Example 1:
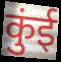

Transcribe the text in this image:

कुंई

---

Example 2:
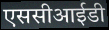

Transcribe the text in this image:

एससीआईडी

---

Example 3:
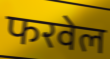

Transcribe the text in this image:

फरवेल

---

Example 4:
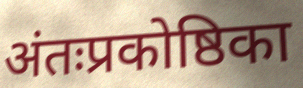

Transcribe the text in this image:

अंतःप्रकोष्ठिका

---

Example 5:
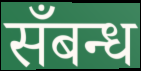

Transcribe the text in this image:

सँबन्ध